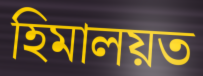
হিমালয়ত